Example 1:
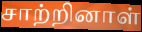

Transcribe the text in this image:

சாற்றினாள்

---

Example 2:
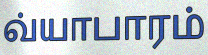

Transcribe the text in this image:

வ்யாபாரம்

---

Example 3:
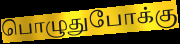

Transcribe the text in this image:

பொழுதுபோக்கு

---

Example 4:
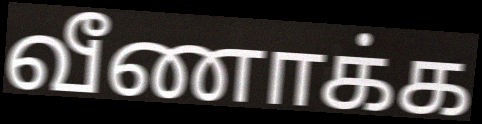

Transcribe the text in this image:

வீணாக்க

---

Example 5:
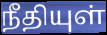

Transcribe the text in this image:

நீதியுள்